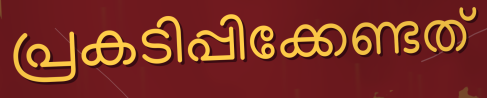
പ്രകടിപ്പിക്കേണ്ടത്